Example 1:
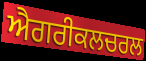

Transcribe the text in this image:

ਐਗਰੀਕਲਚਰਲ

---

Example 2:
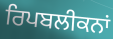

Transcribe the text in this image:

ਰਿਪਬਲੀਕਨਾਂ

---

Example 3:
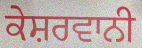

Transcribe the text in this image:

ਕੇਸ਼ਰਵਾਨੀ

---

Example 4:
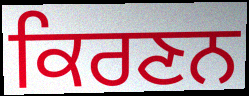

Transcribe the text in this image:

ਕਿਰਣਨ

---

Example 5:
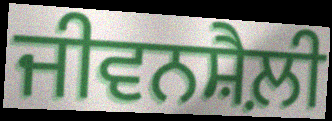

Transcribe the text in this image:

ਜੀਵਨਸ਼ੈਲ਼ੀ